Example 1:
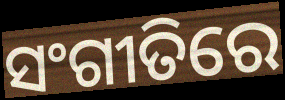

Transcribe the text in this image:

ସଂଗୀତିରେ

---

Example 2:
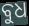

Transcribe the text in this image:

ବୁଧ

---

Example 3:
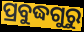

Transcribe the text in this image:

ପ୍ରବୁଦ୍ଧଗୁରୁ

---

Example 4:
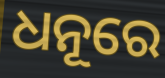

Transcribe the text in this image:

ଧନୂରେ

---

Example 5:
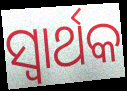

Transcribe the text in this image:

ସ୍ବାର୍ଥକ